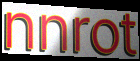
nnrot